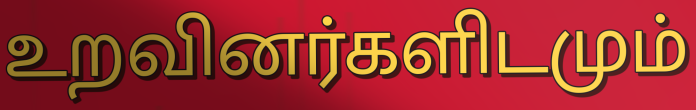
உறவினர்களிடமும்